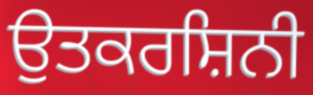
ਉਤਕਰਸ਼ਿਨੀ